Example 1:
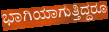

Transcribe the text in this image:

ಭಾಗಿಯಾಗುತ್ತಿದ್ದರೂ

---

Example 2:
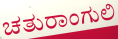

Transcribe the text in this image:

ಚತುರಾಂಗುಲಿ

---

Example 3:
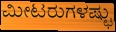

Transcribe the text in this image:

ಮೀಟರುಗಳಷ್ಟು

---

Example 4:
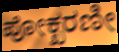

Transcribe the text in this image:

ಪೋಕ್ಖರಣೀ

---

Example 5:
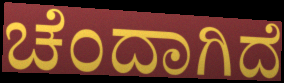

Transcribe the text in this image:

ಚೆಂದಾಗಿದೆ